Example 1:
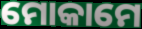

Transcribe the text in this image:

ମୋକାମେ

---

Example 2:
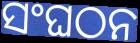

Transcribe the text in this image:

ସଂଘଠନ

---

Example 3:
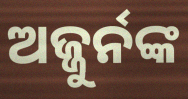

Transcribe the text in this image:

ଅଜ୍ଜୁର୍ନଙ୍କ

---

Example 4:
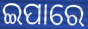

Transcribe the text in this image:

ଇପାରେ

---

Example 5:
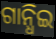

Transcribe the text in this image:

ଗାନ୍ଧିଇ